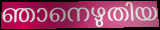
ഞാനെഴുതിയ